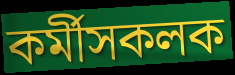
কৰ্মীসকলক